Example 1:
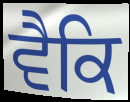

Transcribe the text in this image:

ਵੈਕਿ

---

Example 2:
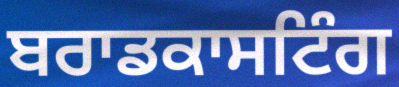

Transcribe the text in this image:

ਬਰਾਡਕਾਸਟਿੰਗ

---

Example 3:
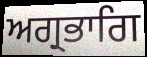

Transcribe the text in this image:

ਅਗ੍ਰਭਾਗਿ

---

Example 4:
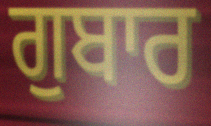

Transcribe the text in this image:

ਗੁਬਾਰ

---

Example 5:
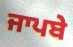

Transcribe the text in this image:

ਜਾਪਬੇ